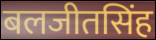
बलजीतसिंह